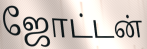
ஜோட்டன்